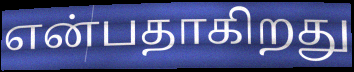
என்பதாகிறது